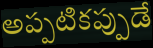
అప్పటికప్పుడే